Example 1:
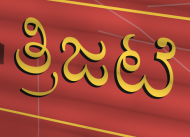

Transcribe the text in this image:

ತ್ರಿಜಟೆ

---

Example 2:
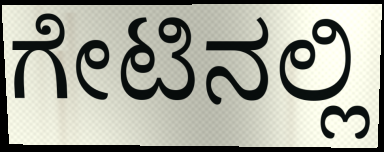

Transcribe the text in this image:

ಗೇಟಿನಲ್ಲಿ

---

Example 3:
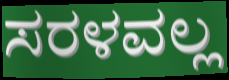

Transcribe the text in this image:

ಸರಳವಲ್ಲ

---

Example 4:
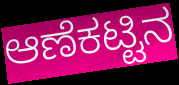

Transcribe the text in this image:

ಆಣೆಕಟ್ಟಿನ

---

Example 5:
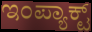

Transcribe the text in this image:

ಇಂಪ್ಯಾಕ್ಟ್